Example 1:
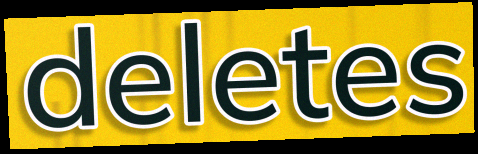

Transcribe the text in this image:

deletes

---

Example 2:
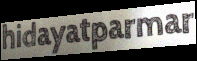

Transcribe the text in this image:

hidayatparmar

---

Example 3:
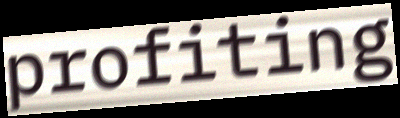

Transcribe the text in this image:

profiting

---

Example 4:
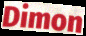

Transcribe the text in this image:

Dimon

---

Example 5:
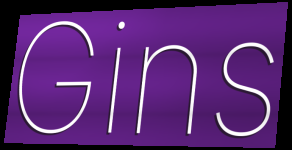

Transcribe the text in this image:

Gins